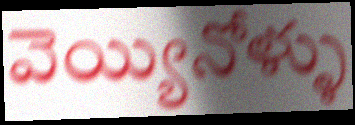
వెయ్యినోళ్ళు